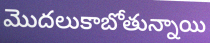
మొదలుకాబోతున్నాయి